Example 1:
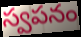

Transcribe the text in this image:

స్వపనం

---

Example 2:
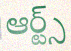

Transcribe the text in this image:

ఆర్ట్స్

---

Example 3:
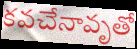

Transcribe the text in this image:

కవచేనావృతో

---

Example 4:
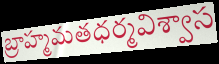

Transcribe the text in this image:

బ్రాహ్మమతధర్మవిశ్వాస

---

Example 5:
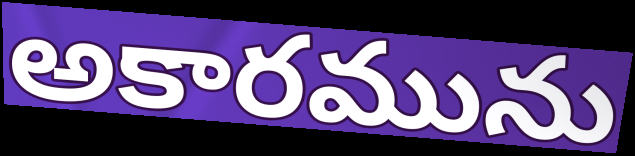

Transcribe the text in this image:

అకారమును